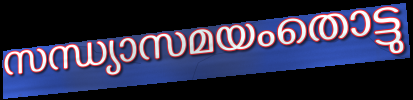
സന്ധ്യാസമയംതൊട്ടു